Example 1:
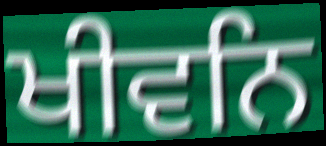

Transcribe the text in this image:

ਖੀਵਨਿ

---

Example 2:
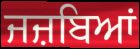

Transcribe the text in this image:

ਜਜ਼ਬਿਆਂ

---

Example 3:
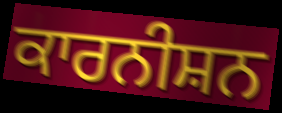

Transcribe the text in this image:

ਕਾਰਨੀਸ਼ਨ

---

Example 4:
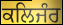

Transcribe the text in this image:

ਕਲਿਜੰਰ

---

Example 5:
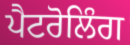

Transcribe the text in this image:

ਪੈਟਰੋਲਿੰਗ